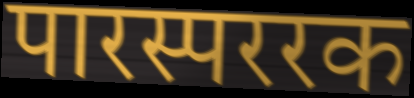
पारस्पररक